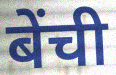
बेंची